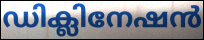
ഡിക്ലിനേഷൻ